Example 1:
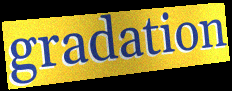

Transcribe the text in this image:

gradation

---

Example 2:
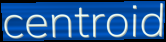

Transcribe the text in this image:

centroid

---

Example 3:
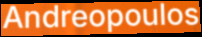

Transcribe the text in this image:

Andreopoulos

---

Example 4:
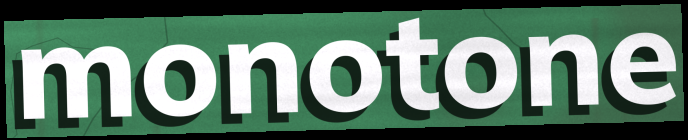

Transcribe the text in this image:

monotone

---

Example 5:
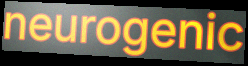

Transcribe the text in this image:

neurogenic